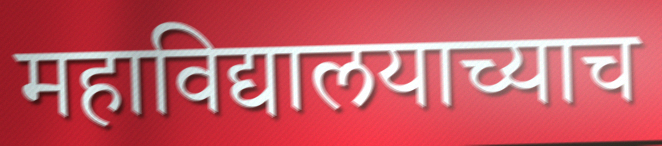
महाविद्यालयाच्याच